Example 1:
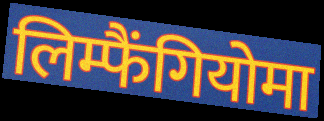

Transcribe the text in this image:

लिम्फैंगियोमा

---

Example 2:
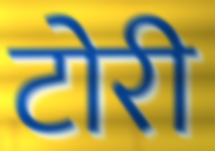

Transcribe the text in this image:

टोरी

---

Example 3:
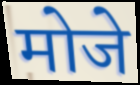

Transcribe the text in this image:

मोजे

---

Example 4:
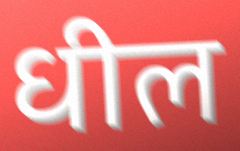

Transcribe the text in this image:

धील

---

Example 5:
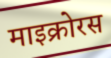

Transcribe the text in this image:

माइक्रोरस